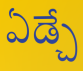
ఏడ్చే